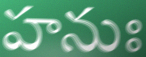
హనుః